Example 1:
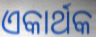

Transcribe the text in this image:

ଏକାର୍ଥକ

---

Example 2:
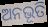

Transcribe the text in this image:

ଅନଭୂତି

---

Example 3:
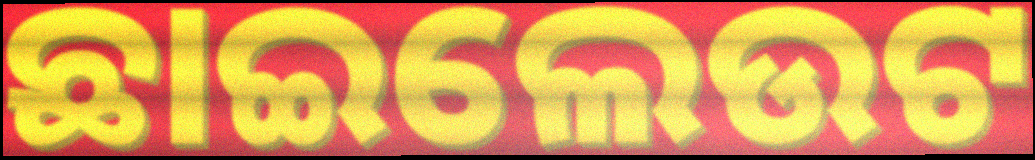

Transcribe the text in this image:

ଛାଇଲେଉଟ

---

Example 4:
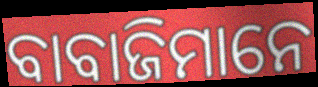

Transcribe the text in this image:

ବାବାଜିମାନେ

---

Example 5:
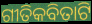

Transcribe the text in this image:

ଗୀତିକବିତାଟି